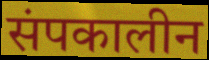
संपकालीन